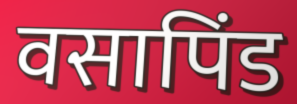
वसापिंड